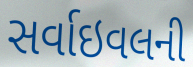
સર્વાઇવલની